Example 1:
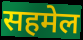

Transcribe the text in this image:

सहमेल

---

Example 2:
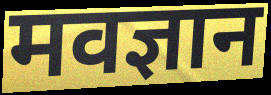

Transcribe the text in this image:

मवज्ञान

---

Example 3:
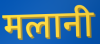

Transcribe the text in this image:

मलानी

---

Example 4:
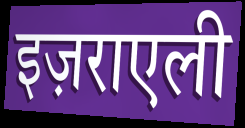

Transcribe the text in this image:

इज़राएली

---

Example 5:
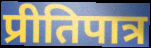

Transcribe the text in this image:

प्रीतिपात्र